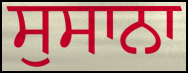
ਸੁਸਾਨਾ